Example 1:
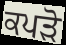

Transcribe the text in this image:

ਕਪੜੋ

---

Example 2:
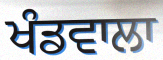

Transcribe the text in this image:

ਖੰਡਵਾਲਾ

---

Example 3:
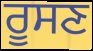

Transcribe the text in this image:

ਰੂਸਣ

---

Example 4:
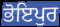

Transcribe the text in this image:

ਭੋਇਪੁਰ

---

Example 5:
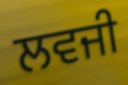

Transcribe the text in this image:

ਲਵਜੀ